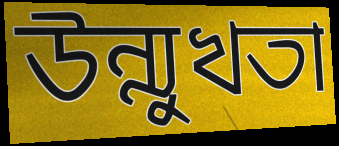
উন্মুখতা